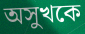
অসুখকে